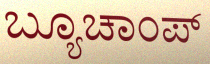
ಬ್ಯೂಚಾಂಪ್